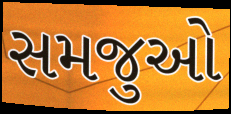
સમજુઓ